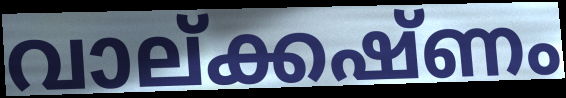
വാല്ക്കഷ്ണം